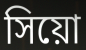
সিয়ো